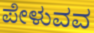
ಪೇಳುವವ